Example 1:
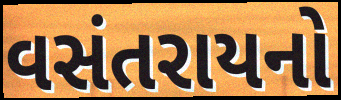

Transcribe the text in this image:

વસંતરાયનો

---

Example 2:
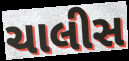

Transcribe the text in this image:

ચાલીસ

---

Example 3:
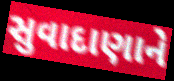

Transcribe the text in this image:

સુવાદાણાને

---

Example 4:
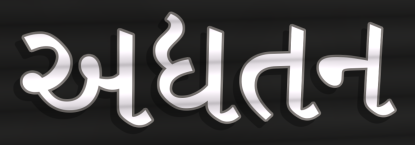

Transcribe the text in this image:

અદ્યતન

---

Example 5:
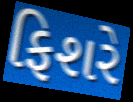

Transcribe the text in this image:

ફિશરે